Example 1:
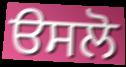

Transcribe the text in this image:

ੳਸਲੋ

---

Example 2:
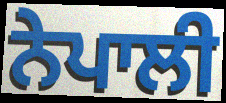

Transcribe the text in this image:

ਨੇਪਾਲੀ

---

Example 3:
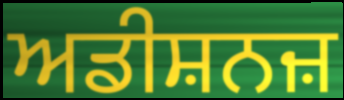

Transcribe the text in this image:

ਅਡੀਸ਼ਨਜ਼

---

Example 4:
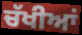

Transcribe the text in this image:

ਚੱਖੀਆਂ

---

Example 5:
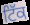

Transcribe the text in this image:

ਟਿੱਕ